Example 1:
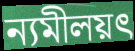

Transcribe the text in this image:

ন্যমীলয়ৎ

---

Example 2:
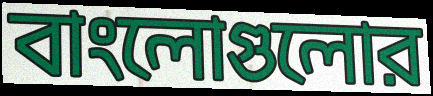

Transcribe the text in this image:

বাংলোগুলোর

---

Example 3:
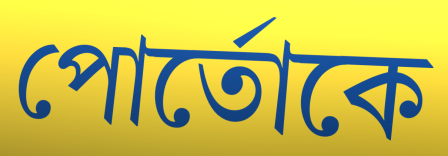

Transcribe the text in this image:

পোর্তোকে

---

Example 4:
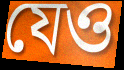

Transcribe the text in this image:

যেও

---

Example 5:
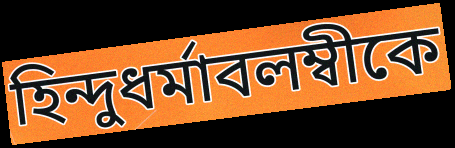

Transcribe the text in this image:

হিন্দুধর্মাবলম্বীকে